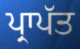
ਪ੍ਰਾਪੱਤ